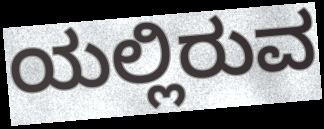
ಯಲ್ಲಿರುವ